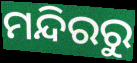
ମନ୍ଦିରରୁ